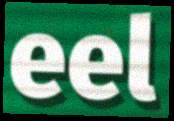
eel